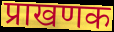
प्राखणक